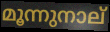
മൂന്നുനാല്